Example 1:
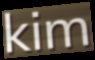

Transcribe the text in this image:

kim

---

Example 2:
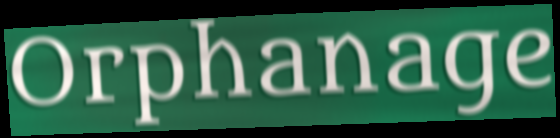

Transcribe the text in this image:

Orphanage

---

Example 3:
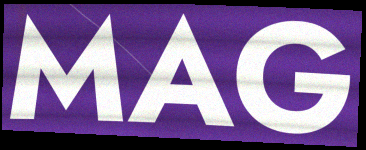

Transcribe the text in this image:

MAG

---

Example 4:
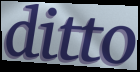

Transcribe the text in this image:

ditto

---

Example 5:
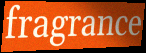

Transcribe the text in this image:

fragrance